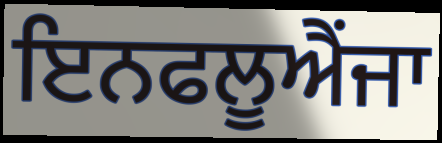
ਇਨਫਲੂਐਂਜਾ